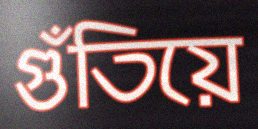
গুঁতিয়ে